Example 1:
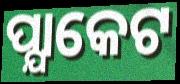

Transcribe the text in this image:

ପ୍ଯାକେଟ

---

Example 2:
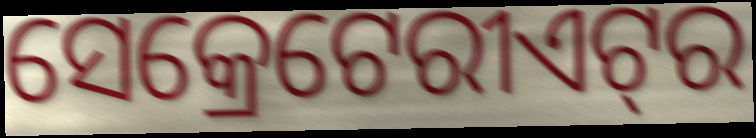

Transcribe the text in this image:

ସେକ୍ରେଟେରୀଏଟ୍‍ର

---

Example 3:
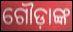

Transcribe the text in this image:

ଗୌଡ଼ାଙ୍କ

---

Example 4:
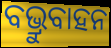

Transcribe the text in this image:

ବଭ୍ରୁବାହନ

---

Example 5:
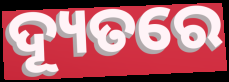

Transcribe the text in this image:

ଦ୍ୟୂତରେ